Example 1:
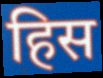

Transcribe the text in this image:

हिस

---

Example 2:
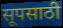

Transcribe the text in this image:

सूपसाठी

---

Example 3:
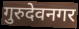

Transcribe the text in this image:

गुरुदेवनगर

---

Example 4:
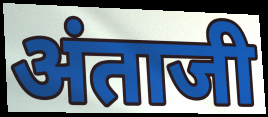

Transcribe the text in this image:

अंताजी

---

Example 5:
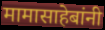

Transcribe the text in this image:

मामासाहेबांनी